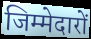
जिम्मेदारों